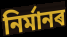
নিৰ্মানৰ